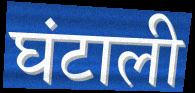
घंटाली